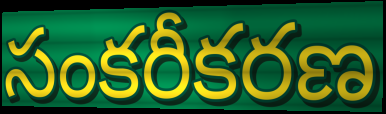
సంకరీకరణ